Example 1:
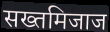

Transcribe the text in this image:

सख्तमिजाज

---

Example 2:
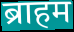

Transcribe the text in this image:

ब्राहम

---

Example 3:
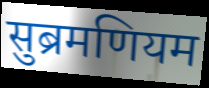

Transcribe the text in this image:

सुब्रमणियम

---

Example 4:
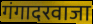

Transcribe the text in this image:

गंगादरवाजा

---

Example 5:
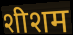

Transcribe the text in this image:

शीशम